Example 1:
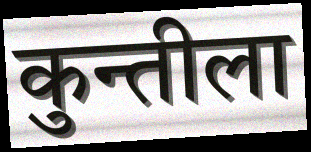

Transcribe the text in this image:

कुन्तीला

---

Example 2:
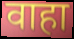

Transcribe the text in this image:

वाहा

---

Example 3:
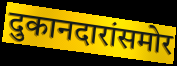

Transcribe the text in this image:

दुकानदारांसमोर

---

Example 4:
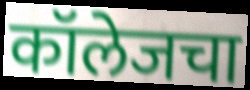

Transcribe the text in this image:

कॉलेजचा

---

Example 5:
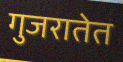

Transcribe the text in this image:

गुजरातेत